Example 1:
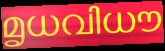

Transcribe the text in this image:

മൃധവിധൗ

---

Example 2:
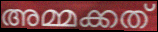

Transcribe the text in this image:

അമ്മക്കത്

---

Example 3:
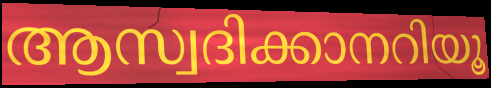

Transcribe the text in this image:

ആസ്വദിക്കാനറിയൂ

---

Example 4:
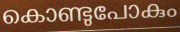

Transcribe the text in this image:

കൊണ്ടുപോകും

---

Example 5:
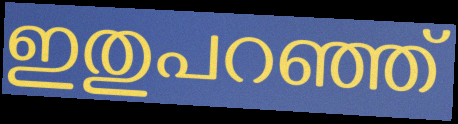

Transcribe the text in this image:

ഇതുപറഞ്ഞ്